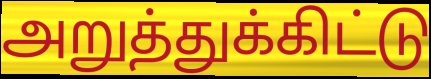
அறுத்துக்கிட்டு